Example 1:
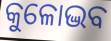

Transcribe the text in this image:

କୁଳୋଦ୍ଭବ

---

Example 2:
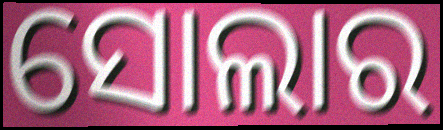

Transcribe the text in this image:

ସୋଲାର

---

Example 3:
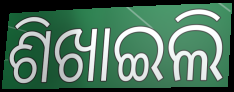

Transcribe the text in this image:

ଶିଖାଇଲି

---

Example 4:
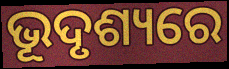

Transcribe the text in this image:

ଭୂଦୃଶ୍ୟରେ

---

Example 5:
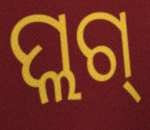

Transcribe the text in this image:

ପ୍ଲଗ୍